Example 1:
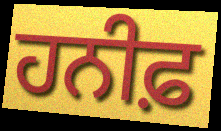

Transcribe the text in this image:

ਹਨੀਫ਼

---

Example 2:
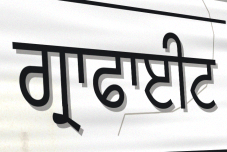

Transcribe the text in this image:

ਗ੍ਰਾਫਾਈਟ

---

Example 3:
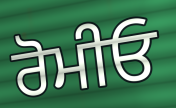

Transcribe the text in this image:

ਰੋਮੀਓ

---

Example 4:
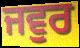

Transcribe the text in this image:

ਜਵੁਰ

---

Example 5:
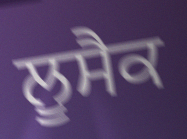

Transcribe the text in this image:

ਲੂਸੈਕ